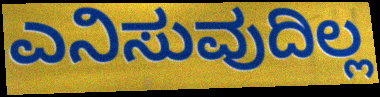
ಎನಿಸುವುದಿಲ್ಲ